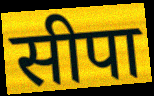
सीपा